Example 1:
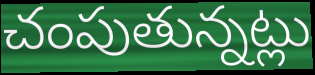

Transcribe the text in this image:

చంపుతున్నట్లు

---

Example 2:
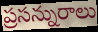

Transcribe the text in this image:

ప్రసన్నురాలు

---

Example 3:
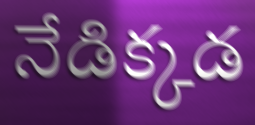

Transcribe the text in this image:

నేడిక్కడ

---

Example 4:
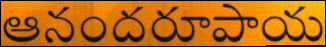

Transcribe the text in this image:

ఆనందరూపాయ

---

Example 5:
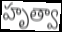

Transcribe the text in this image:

హృత్వా